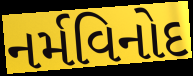
નર્મવિનોદ